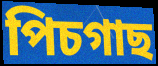
পিচগাছ